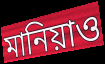
মানিয়াও